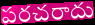
పరచరాదు